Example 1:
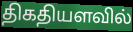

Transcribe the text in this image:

திகதியளவில்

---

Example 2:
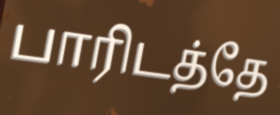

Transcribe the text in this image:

பாரிடத்தே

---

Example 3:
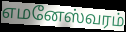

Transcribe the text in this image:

எமனேஸ்வரம்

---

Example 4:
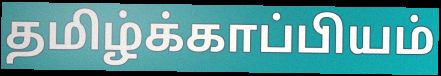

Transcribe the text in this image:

தமிழ்க்காப்பியம்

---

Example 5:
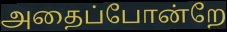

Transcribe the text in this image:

அதைப்போன்றே